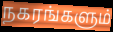
நகரங்களும்